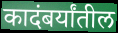
कादंबर्यांतील